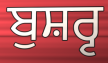
ਬੁਸ਼ਰ੍ਟ